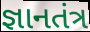
જ્ઞાનતંત્ર